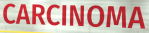
CARCINOMA